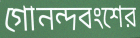
গোনন্দবংশের